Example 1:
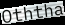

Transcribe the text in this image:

Oththa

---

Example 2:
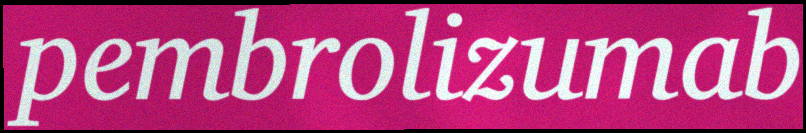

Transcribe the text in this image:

pembrolizumab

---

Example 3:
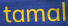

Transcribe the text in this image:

tamal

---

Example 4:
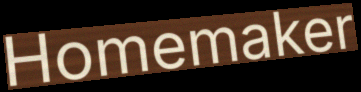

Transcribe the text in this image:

Homemaker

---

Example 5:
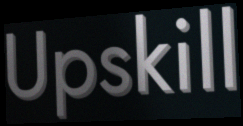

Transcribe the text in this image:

Upskill